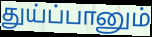
துய்ப்பானும்